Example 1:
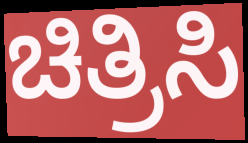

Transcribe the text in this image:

ಚಿತ್ರಿಸಿ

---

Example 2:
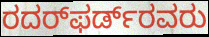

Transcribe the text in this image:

ರದರ್‌ಫರ್ಡ್‌ರವರು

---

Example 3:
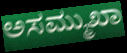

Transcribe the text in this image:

ಅಸಮ್ಮುಖಾ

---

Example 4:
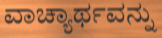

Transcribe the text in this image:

ವಾಚ್ಯಾರ್ಥವನ್ನು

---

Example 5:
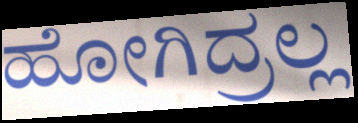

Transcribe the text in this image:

ಹೋಗಿದ್ರಲ್ಲ